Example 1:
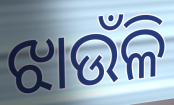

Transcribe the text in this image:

ଝାଉଁଳି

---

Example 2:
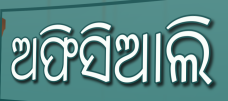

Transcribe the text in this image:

ଅଫିସିଆଲି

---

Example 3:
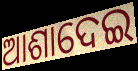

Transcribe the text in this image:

ଆଶାଦେଇ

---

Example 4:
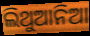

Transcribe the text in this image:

ଲିଥୁଆନିଆ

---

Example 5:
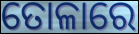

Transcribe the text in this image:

ତୋଳାରେ